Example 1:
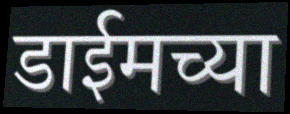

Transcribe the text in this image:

डाईमच्या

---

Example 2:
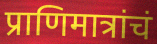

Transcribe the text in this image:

प्राणिमात्रांचं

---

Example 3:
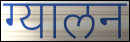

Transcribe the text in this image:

ग्यालन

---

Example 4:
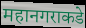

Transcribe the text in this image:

महानगराकडे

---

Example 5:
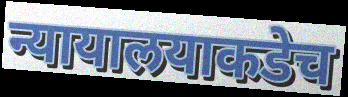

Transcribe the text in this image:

न्यायालयाकडेच